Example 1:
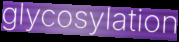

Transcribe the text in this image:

glycosylation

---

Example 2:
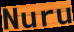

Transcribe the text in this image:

Nuru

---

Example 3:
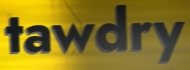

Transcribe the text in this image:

tawdry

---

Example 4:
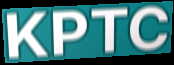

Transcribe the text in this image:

KPTC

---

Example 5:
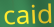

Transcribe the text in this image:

caid